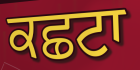
ਕਛਟਾ